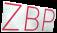
ZBP